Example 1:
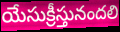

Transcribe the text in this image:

యేసుక్రీస్తునందలి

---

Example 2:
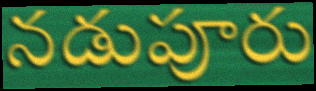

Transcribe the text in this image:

నడుపూరు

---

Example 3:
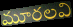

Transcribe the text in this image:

మూరలవి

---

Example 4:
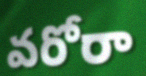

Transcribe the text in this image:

వరోరా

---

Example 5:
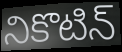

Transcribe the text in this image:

నికొటిన్